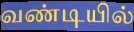
வண்டியில்